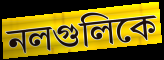
নলগুলিকে